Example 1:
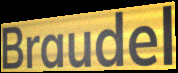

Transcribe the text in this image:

Braudel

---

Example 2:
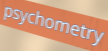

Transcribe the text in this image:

psychometry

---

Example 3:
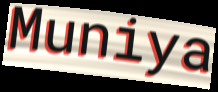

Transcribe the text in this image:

Muniya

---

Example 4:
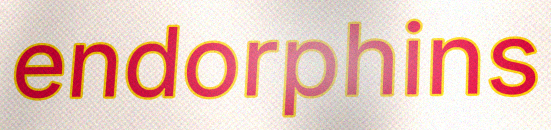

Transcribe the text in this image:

endorphins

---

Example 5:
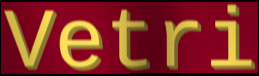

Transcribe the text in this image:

Vetri